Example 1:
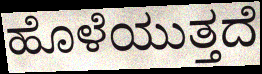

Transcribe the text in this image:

ಹೊಳೆಯುತ್ತದೆ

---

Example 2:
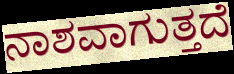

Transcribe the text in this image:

ನಾಶವಾಗುತ್ತದೆ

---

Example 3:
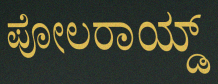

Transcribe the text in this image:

ಪೋಲರಾಯ್ಡ್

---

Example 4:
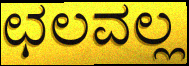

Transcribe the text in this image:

ಛಲವಲ್ಲ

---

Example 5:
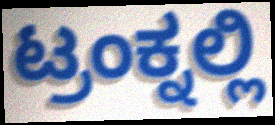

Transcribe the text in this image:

ಟ್ರಂಕ್ನಲ್ಲಿ